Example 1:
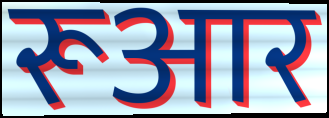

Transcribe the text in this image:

रूआर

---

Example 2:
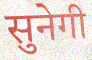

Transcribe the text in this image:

सुनेगी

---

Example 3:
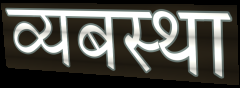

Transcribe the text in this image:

व्यबस्था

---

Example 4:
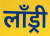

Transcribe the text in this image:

लॉंड्री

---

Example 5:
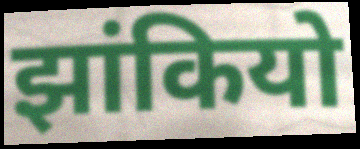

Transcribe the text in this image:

झांकियो